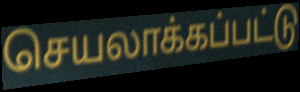
செயலாக்கப்பட்டு